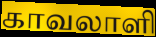
காவலாளி